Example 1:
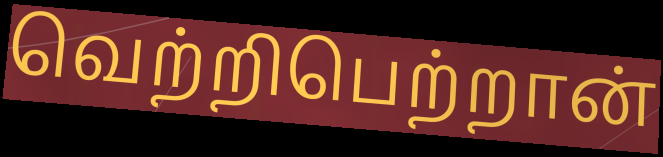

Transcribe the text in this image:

வெற்றிபெற்றான்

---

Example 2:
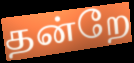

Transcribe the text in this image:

தன்றே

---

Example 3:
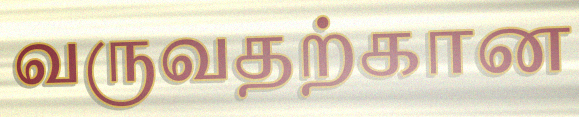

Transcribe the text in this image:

வருவதற்கான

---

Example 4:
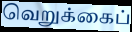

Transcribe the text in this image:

வெறுக்கைப்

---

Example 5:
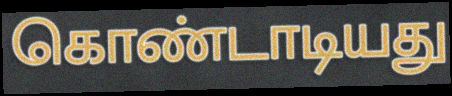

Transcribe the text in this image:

கொண்டாடியது